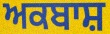
ਅਕਬਾਸ਼